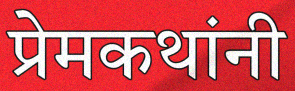
प्रेमकथांनी